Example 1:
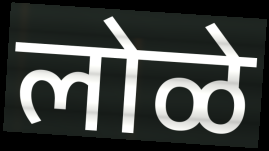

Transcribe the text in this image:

लोळे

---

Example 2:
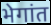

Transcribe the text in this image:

भेगांत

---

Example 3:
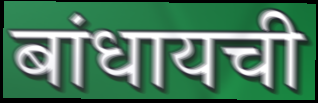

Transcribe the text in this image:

बांधायची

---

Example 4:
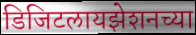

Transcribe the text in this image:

डिजिटलायझेशनच्या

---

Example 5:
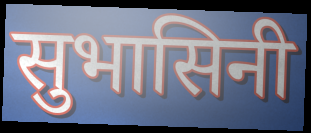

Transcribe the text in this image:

सुभासिनी